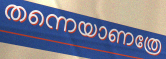
തന്നെയാണത്രേ